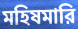
মহিষমারি